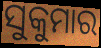
ସୁକୁମାର